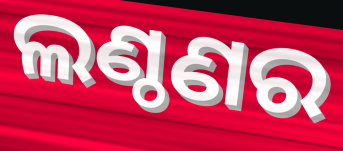
ଲଣ୍ଠଣର